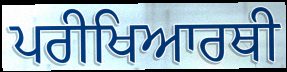
ਪਰੀਖਿਆਰਥੀ